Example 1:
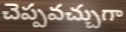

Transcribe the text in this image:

చెప్పవచ్చుగా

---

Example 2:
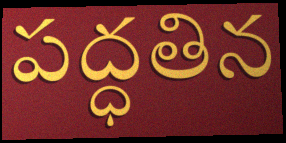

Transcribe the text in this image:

పద్ధతిన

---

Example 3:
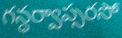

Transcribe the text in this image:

గన్ధర్వాప్సరసో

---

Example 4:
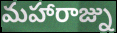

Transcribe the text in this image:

మహారాజ్ను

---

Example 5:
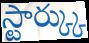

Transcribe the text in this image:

స్టార్క్కు